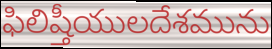
ఫిలిష్తీయులదేశమును